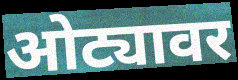
ओट्यावर